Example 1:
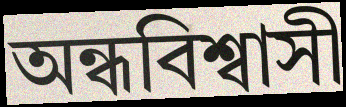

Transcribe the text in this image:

অন্ধবিশ্বাসী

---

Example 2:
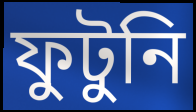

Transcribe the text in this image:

ফুটুনি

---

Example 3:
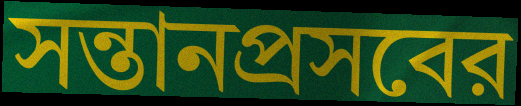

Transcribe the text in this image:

সন্তানপ্রসবের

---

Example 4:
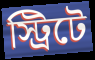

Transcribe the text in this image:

স্ট্রিটে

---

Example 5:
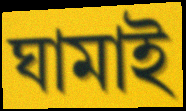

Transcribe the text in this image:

ঘামাই